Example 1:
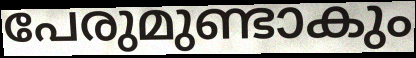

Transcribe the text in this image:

പേരുമുണ്ടാകും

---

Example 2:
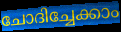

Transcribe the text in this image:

ചോദിച്ചേക്കാം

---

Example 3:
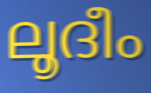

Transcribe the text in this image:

ലൂദീം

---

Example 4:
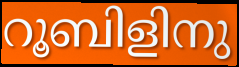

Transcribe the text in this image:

റൂബിളിനു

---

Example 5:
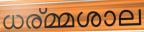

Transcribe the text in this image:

ധര്മ്മശാല